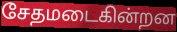
சேதமடைகின்றன